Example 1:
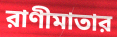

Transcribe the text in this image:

রাণীমাতার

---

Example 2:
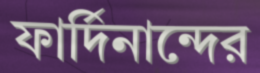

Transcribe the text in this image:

ফার্দিনান্দের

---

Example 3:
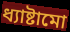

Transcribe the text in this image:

ধ্যাষ্টামো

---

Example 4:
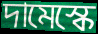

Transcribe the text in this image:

দামেস্কে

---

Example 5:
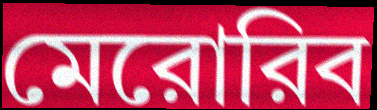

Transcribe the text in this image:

মেরোরিব